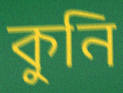
কুনি